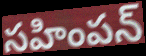
సహింపన్